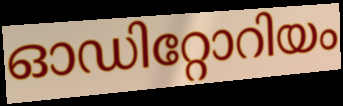
ഓഡിറ്റോറിയം